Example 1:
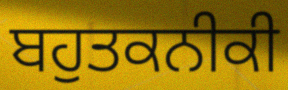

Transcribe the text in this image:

ਬਹੁਤਕਨੀਕੀ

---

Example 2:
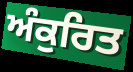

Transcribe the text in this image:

ਅੰਕੁਰਿਤ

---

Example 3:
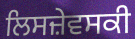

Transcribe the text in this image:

ਲਿਸਜ਼ੇਵਸਕੀ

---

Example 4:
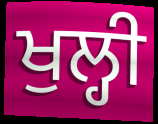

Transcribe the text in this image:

ਖੁਲ੍ਹੀ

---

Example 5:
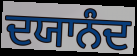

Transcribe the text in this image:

ਦਯਾਨੰਦ